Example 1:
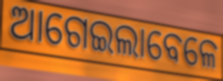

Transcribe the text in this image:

ଆଗେଇଲାବେଳେ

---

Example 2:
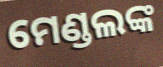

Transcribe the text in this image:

ମେଣ୍ଡଲଙ୍କ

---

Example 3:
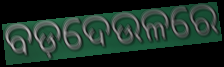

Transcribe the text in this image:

ବଡ଼ଦେଉଳରେ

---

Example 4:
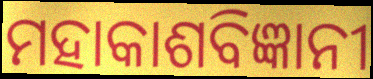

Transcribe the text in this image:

ମହାକାଶବିଜ୍ଞାନୀ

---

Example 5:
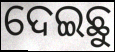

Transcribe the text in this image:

ଦେଇଛୁ